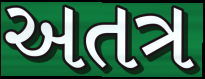
અતત્ર